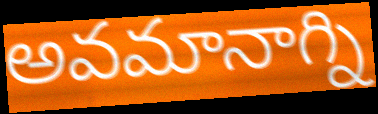
అవమానాగ్ని